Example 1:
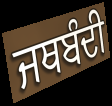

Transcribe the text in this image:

ਜਥਬੰਦੀ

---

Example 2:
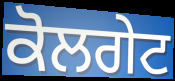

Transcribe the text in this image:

ਕੋਲਗੇਟ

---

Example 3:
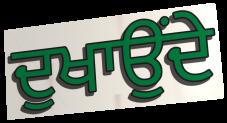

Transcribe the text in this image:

ਦੁਖਾਉਂਦੇ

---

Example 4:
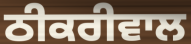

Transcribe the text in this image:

ਠੀਕਰੀਵਾਲ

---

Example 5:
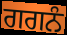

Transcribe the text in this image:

ਗਗਨੰ